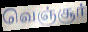
வெஞ்சூர்